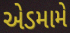
એડમામે